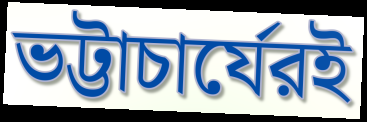
ভট্টাচার্যেরই